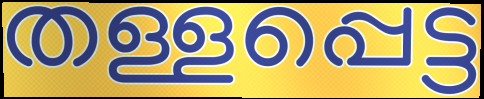
തള്ളപ്പെട്ട